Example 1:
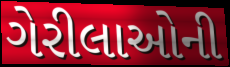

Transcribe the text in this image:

ગેરીલાઓની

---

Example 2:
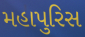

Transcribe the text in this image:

મહાપુરિસ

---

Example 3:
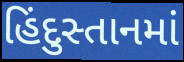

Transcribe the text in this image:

હિંદુસ્તાનમાં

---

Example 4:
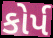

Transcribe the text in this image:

કોર્પ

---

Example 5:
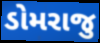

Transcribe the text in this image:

ડોમરાજુ